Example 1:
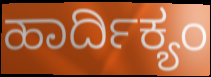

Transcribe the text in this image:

ಹಾರ್ದಿಕ್ಯಂ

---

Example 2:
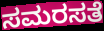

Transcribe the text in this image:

ಸಮರಸತೆ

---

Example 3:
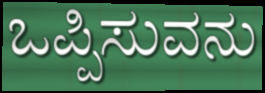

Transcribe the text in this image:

ಒಪ್ಪಿಸುವನು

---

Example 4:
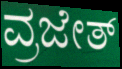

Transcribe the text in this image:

ವ್ರಜೇತ್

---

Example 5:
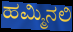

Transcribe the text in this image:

ಹಮ್ಮಿನಲಿ